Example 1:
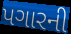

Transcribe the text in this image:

પગારની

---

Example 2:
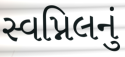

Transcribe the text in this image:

સ્વપ્નિલનું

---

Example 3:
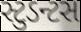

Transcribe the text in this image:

સ્ટુડન્ટસ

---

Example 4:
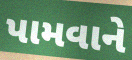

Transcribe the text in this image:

પામવાને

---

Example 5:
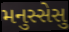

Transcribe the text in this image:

મનુસ્સેસુ